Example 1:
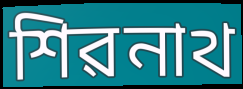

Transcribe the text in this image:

শিৱনাথ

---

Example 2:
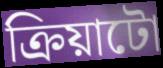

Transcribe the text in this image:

ক্ৰিয়াটো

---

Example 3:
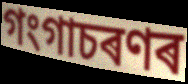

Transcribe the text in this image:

গংগাচৰণৰ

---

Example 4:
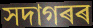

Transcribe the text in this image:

সদাগৰৰ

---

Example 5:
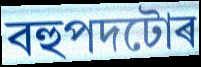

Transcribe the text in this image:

বহুপদটোৰ